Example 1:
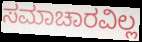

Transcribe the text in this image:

ಸಮಾಚಾರವಿಲ್ಲ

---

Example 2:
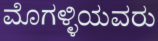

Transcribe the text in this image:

ಮೊಗಳ್ಳಿಯವರು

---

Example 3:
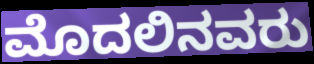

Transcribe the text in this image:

ಮೊದಲಿನವರು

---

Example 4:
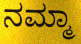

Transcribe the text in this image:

ನಮ್ಮಾ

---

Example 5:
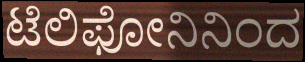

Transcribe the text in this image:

ಟೆಲಿಫೋನಿನಿಂದ